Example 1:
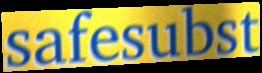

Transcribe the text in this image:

safesubst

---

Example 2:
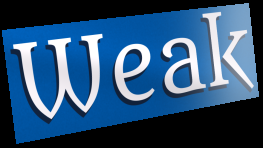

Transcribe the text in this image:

Weak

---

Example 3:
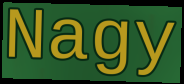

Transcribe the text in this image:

Nagy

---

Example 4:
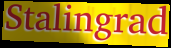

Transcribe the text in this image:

Stalingrad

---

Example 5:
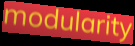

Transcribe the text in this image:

modularity